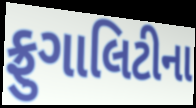
ફ્રુગાલિટીના